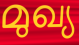
മുഖ്യ